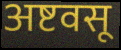
अष्टवसू